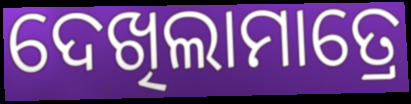
ଦେଖିଲାମାତ୍ରେ